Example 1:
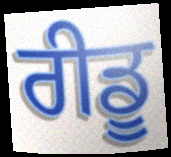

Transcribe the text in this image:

ਰੀਡੂ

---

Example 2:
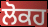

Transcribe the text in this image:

ਲੋਕਹ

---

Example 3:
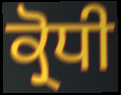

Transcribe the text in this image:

ਕ੍ਰੋਧੀ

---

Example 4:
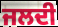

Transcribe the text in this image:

ਜਲਦੀ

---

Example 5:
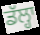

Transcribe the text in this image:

ਡੱਲ੍ਹਾ